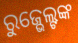
ରୁଜ୍ଭେଲ୍ଟଙ୍କ